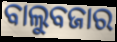
ବାଲୁବଜାର